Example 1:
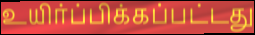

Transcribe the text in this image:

உயிர்ப்பிக்கப்பட்டது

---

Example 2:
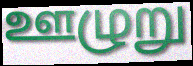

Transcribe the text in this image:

ஊழுறு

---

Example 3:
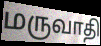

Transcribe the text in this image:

மருவாதி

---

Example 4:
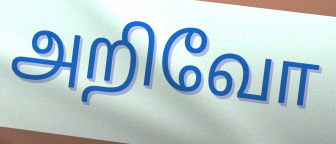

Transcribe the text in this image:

அறிவோ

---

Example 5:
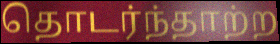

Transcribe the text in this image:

தொடர்ந்தாற்ற